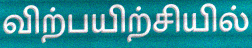
விற்பயிற்சியில்